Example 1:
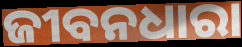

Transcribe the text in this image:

ଜୀବନଧାରା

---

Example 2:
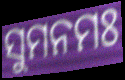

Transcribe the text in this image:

ସୁମନମଃ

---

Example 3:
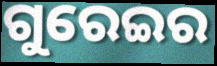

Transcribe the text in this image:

ଗୁରେଇର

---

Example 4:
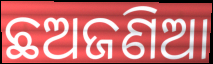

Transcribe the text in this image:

ଛଅଜଣିଆ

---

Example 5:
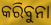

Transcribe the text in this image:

କରିବୁନା